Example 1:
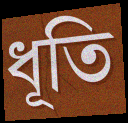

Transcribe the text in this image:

ধূতি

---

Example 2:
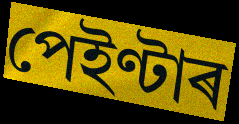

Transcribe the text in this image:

পেইণ্টাৰ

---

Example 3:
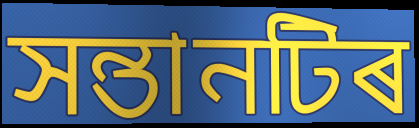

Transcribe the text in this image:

সন্তানটিৰ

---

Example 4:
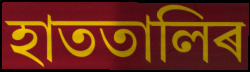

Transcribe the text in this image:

হাততালিৰ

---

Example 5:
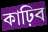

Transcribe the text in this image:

কাঢ়িব